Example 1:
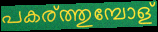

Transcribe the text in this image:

പകര്ത്തുമ്പോള്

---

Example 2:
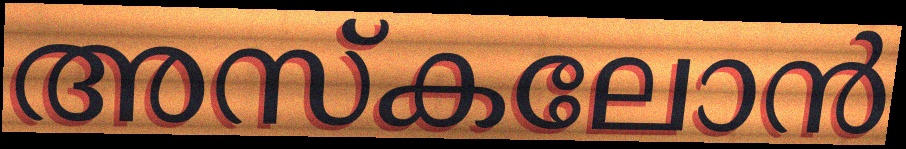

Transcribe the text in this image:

അസ്കലോൻ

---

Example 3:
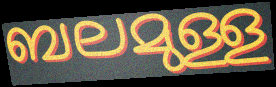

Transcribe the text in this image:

ബലമുള്ള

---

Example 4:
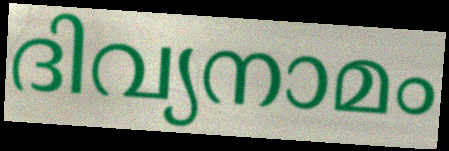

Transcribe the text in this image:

ദിവ്യനാമം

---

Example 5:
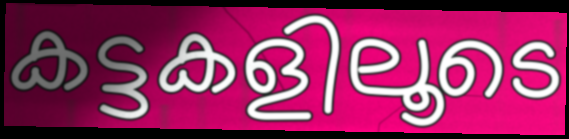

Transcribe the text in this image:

കട്ടകളിലൂടെ